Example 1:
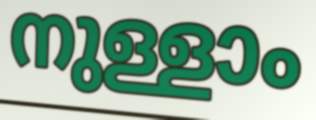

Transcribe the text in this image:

നുള്ളാം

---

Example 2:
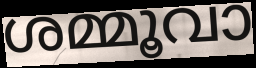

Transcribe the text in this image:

ശമ്മൂവാ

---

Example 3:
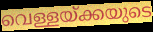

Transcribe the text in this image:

വെള്ളയ്ക്കയുടെ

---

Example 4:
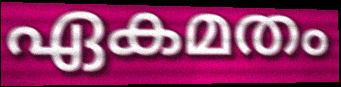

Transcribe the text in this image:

ഏകമതം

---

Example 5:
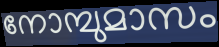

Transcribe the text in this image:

നോമ്പുമാസം